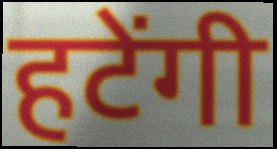
हटेंगी